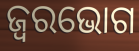
ଜ୍ୱରଭୋଗ